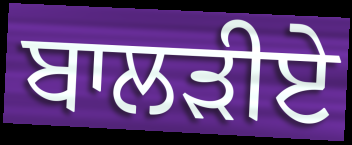
ਬਾਲੜੀਏ